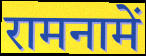
रामनामें